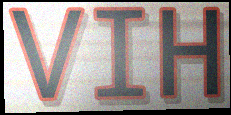
VIH